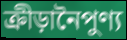
ক্রীড়ানৈপুণ্য